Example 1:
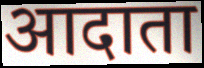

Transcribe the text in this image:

आदाता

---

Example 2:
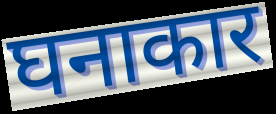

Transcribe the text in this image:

घनाकार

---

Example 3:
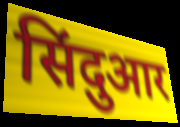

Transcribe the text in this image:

सिंदुआर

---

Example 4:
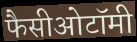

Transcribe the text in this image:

फैसीओटॉमी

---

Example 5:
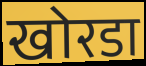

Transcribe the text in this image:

खोरडा